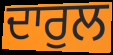
ਦਾਰੁਲ